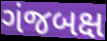
ગંજબક્ષ